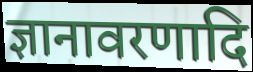
ज्ञानावरणादि